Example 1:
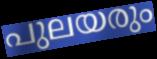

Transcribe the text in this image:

പുലയരും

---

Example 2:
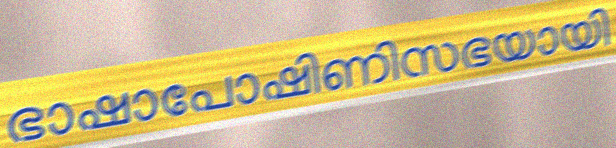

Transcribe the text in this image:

ഭാഷാപോഷിണിസഭയായി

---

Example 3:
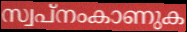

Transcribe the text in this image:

സ്വപ്നംകാണുക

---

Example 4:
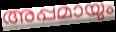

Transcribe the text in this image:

അപ്പമായും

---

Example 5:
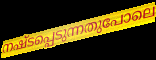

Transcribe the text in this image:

നഷ്ടപ്പെടുന്നതുപോലെ